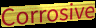
Corrosive